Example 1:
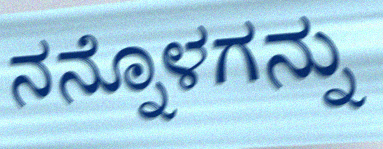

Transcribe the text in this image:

ನನ್ನೊಳಗನ್ನು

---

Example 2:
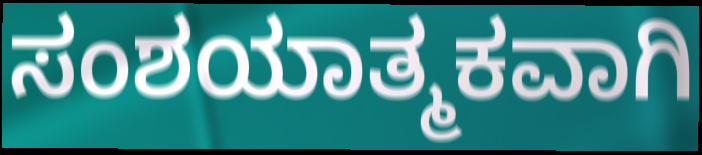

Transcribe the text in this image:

ಸಂಶಯಾತ್ಮಕವಾಗಿ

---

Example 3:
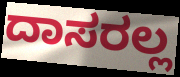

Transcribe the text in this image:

ದಾಸರಲ್ಲ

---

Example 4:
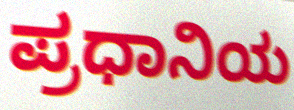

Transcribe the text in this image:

ಪ್ರಧಾನಿಯ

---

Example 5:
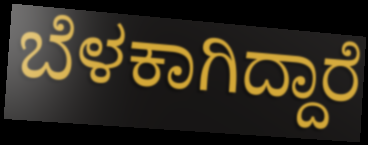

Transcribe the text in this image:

ಬೆಳಕಾಗಿದ್ದಾರೆ